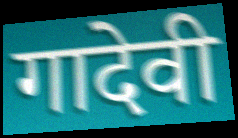
गादेवी